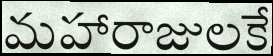
మహారాజులకే